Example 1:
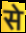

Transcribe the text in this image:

से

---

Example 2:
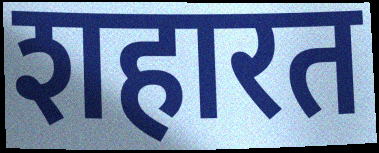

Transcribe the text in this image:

शहारत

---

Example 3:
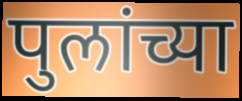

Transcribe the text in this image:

पुलांच्या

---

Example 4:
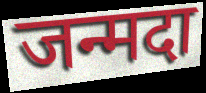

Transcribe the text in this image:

जन्मदा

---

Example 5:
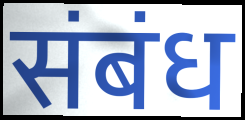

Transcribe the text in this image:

संबंध